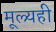
मूल्यही